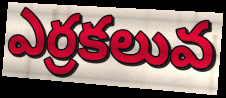
ఎర్రకలువ